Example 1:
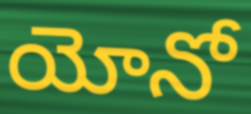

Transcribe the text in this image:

యోనో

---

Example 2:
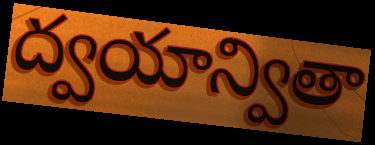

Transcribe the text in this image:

ద్వయాన్వితా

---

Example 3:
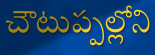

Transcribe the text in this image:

చౌటుప్పల్లోని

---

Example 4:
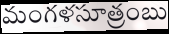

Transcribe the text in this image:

మంగళసూత్రంబు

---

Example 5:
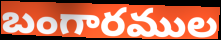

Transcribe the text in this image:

బంగారముల